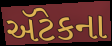
ઍટેકના